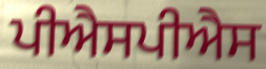
ਪੀਐਸਪੀਐਸ